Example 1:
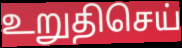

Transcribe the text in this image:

உறுதிசெய்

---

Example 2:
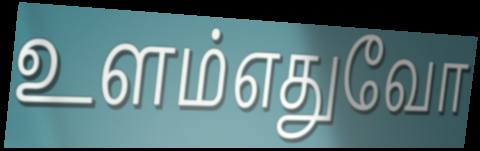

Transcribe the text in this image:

உளம்எதுவோ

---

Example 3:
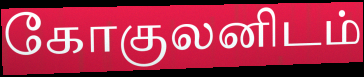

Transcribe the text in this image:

கோகுலனிடம்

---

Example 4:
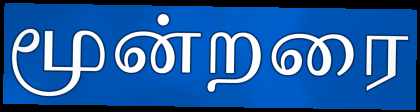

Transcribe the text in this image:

மூன்றரை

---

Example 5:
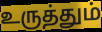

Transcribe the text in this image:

உருத்தும்